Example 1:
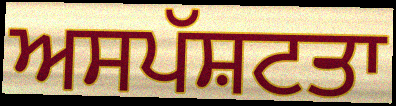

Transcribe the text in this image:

ਅਸਪੱਸ਼ਟਤਾ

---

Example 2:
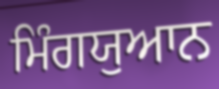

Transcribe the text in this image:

ਮਿੰਗਯੁਆਨ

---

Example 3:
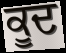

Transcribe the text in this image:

ਕੂਦ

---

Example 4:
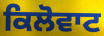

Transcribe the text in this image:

ਕਿਲੋਵਾਟ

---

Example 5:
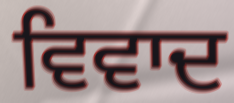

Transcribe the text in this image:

ਵਿਵਾਦ